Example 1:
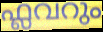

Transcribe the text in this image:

ഫ്ലവറും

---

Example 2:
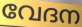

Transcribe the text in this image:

വേദന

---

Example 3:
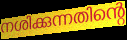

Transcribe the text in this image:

നശിക്കുന്നതിന്റെ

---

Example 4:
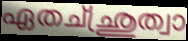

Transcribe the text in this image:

ഏതച്ഛ്രുത്വാ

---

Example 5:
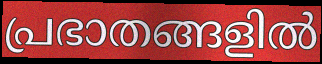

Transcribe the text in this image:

പ്രഭാതങ്ങളിൽ